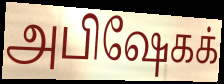
அபிஷேகக்